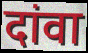
दांवा